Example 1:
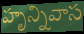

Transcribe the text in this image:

హృన్నివాస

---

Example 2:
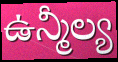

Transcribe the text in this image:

ఉన్మీల్య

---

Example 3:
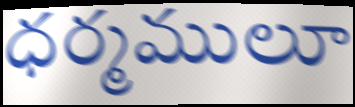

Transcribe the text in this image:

ధర్మములూ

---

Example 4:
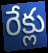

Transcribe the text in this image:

రేక్లు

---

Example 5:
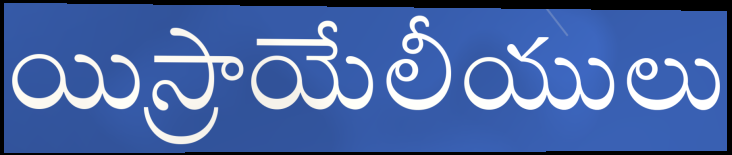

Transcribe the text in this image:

యిస్రాయేలీయులు